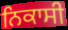
ਨਿਕਾਸੀ